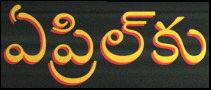
ఏప్రిల్‌కు